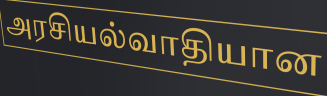
அரசியல்வாதியான